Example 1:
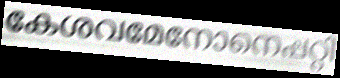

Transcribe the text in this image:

കേശവമേനോനെപ്പറ്റി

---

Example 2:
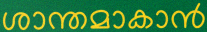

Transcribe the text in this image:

ശാന്തമാകാൻ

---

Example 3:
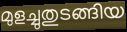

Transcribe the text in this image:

മുളച്ചുതുടങ്ങിയ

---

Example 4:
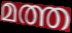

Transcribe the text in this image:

മത്ത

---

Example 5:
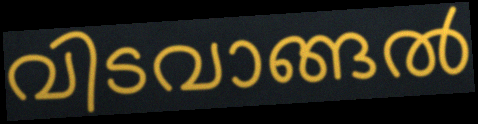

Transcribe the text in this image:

വിടവാങ്ങൽ